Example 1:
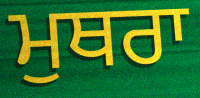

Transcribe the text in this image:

ਮੁਥਰਾ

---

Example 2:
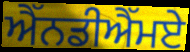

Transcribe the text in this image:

ਐੱਨਡੀਐੱਮਏ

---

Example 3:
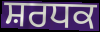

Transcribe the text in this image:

ਸ਼ਰਧਕ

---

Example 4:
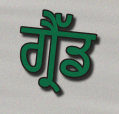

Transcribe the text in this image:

ਗ੍ਰੈੱਡ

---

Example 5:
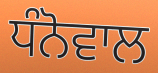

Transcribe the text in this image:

ਧੰਨੋਵਾਲ